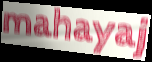
mahayaj